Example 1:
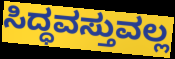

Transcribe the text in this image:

ಸಿದ್ಧವಸ್ತುವಲ್ಲ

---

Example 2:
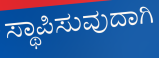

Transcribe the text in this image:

ಸ್ಥಾಪಿಸುವುದಾಗಿ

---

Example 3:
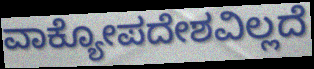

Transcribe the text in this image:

ವಾಕ್ಯೋಪದೇಶವಿಲ್ಲದೆ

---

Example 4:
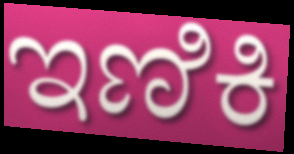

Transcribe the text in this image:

ಇಣಿಕಿ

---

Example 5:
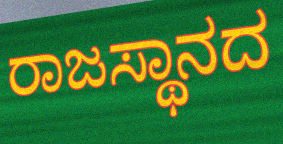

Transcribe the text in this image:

ರಾಜಸ್ಥಾನದ